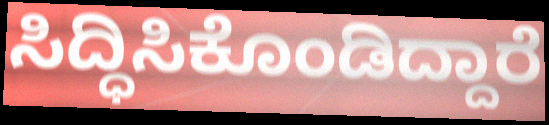
ಸಿದ್ಧಿಸಿಕೊಂಡಿದ್ದಾರೆ